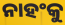
ନାହଂକୁ